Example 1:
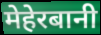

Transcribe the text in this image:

मेहेरबानी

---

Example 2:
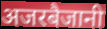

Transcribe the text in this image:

अजरबैजानी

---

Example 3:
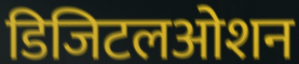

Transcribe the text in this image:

डिजिटलओशन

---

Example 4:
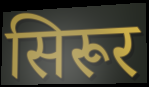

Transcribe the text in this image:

सिरूर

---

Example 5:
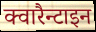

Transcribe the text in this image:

क्वारैन्टाइन